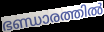
ഭണ്ഡാരത്തിൽ